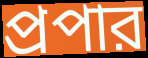
প্রপার